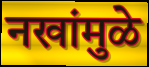
नखांमुळे